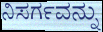
ನಿಸರ್ಗವನ್ನು